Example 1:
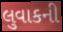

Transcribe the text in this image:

લુવાકની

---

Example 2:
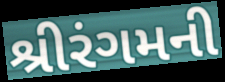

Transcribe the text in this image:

શ્રીરંગમની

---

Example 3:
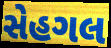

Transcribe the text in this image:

સેહગલ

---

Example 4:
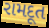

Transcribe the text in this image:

રામદૂત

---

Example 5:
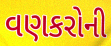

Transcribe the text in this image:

વણકરોની